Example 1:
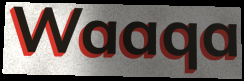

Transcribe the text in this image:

Waaqa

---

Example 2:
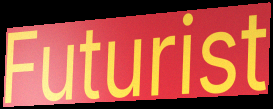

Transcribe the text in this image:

Futurist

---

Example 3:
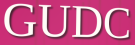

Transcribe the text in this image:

GUDC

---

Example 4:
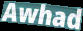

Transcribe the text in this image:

Awhad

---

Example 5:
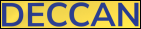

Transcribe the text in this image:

DECCAN